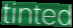
tinted